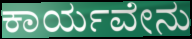
ಕಾರ್ಯವೇನು